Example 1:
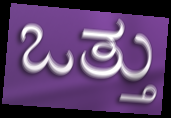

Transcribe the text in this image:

ಒತ್ತು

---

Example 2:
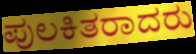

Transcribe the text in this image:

ಪುಲಕಿತರಾದರು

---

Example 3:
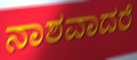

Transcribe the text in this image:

ನಾಶವಾದರೆ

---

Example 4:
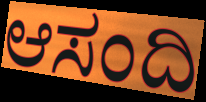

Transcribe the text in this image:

ಆಸಂದಿ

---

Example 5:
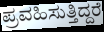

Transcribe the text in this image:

ಪ್ರವಹಿಸುತ್ತಿದ್ದರೆ